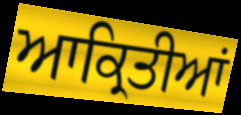
ਆਕ੍ਰਿਤੀਆਂ